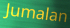
Jumalan